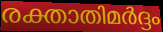
രക്താതിമർദ്ദം